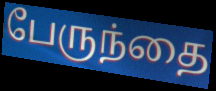
பேருந்தை